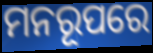
ମନରୂପରେ